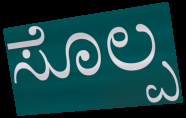
ಸೊಲ್ಪ